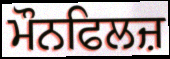
ਮੌਨਫਿਲਜ਼